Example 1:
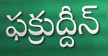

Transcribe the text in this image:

ఫక్రుద్దీన్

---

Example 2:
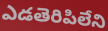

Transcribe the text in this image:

ఎడతెరిపిలేని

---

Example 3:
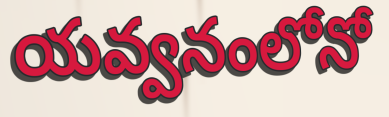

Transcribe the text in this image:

యవ్వనంలోనో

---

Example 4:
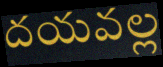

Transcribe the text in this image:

దయవల్ల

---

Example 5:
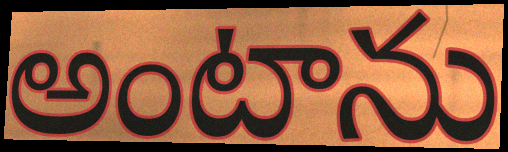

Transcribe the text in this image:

అంటాను